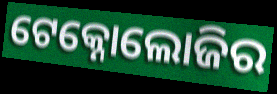
ଟେକ୍ନୋଲୋଜିର